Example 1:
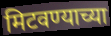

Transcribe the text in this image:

मिटवण्याच्या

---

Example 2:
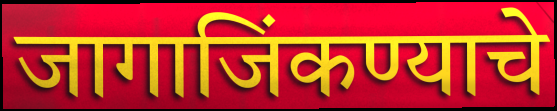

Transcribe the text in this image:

जागाजिंकण्याचे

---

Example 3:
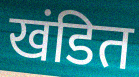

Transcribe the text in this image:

खंडित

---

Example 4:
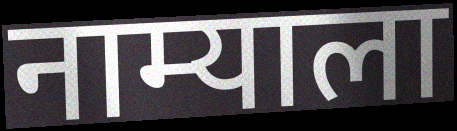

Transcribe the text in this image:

नाम्याला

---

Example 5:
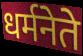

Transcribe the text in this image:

धर्मनेते